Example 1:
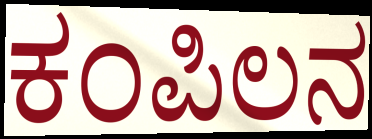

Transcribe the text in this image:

ಕಂಪಿಲನ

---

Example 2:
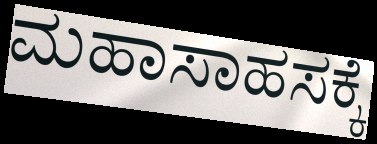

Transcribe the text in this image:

ಮಹಾಸಾಹಸಕ್ಕೆ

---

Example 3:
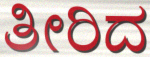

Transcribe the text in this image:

ತೀರಿದ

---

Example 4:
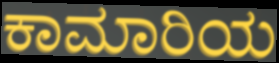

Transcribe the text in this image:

ಕಾಮಾರಿಯ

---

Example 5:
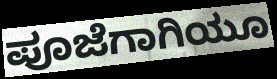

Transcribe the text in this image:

ಪೂಜೆಗಾಗಿಯೂ